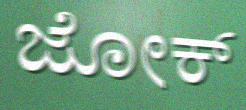
ಜೋಕ್